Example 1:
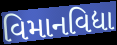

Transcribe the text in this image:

વિમાનવિદ્યા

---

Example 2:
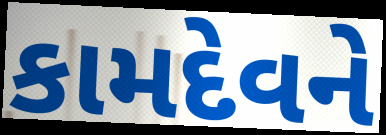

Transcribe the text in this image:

કામદેવને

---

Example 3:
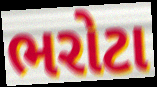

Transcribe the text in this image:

ભરોટા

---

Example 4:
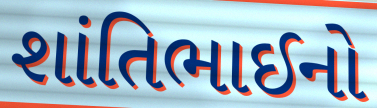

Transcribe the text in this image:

શાંતિભાઈનો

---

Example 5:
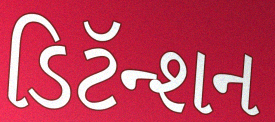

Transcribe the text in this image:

ડિટૅન્શન